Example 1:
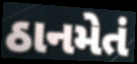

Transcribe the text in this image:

ઠાનમેતં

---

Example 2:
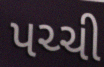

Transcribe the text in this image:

પચ્ચી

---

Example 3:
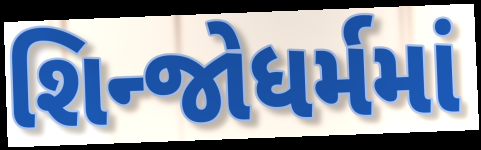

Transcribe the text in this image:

શિન્જોધર્મમાં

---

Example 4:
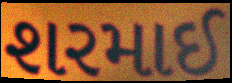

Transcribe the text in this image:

શરમાઈ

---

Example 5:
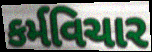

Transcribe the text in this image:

કર્મવિચાર